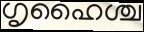
ഗൃഹൈശ്ച